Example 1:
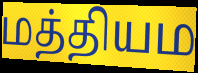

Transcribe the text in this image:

மத்தியம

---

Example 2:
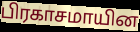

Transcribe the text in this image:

பிரகாசமாயின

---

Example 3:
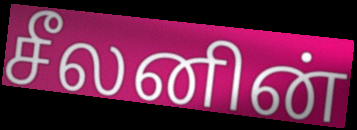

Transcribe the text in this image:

சீலனின்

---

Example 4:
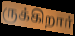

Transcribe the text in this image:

ருக்கிறார்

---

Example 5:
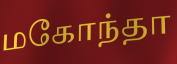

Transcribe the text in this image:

மகோந்தா